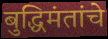
बुद्धिमंतांचे